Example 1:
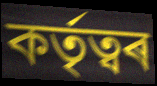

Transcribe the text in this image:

কৰ্তৃত্বৰ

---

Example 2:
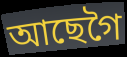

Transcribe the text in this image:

আছেগৈ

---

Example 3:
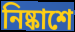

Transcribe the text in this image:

নিষ্কাশে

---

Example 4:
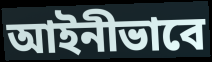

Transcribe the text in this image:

আইনীভাবে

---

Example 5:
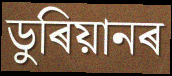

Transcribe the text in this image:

ডুৰিয়ানৰ